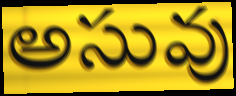
అసువు